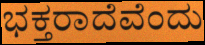
ಭಕ್ತರಾದೆವೆಂದು